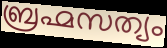
ബ്രഹ്മസത്യം